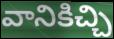
వానికిచ్చి